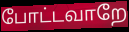
போட்டவாறே